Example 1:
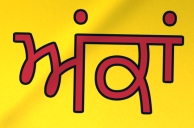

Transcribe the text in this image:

ਅਂਕਾਂ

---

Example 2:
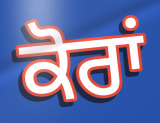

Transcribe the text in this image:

ਕੋਰਾਂ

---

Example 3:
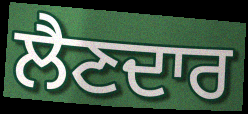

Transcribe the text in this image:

ਲੈਣਦਾਰ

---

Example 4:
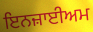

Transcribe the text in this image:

ਇਨਜ਼ਾਈਅਮ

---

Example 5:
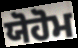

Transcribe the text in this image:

ਯੋਹੋਮ